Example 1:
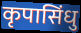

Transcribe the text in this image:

कृपासिंधु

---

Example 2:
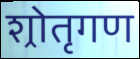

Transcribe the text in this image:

श्रोतृगण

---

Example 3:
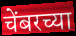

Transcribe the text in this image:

चेंबरच्या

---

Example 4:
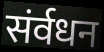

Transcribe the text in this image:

संर्वधन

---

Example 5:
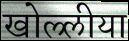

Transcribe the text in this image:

खोल्लीया